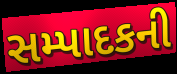
સમ્પાદકની